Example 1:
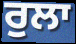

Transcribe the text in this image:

ਰੁਲਾ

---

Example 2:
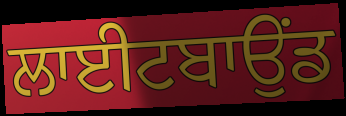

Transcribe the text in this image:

ਲਾਈਟਬਾਉਂਡ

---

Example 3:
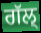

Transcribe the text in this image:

ਗੱਲ੍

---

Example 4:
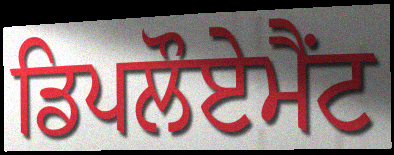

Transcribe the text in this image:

ਡਿਪਲੌਏਮੈਂਟ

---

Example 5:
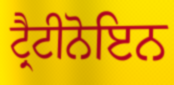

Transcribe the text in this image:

ਟ੍ਰੈਟੀਨੋਇਨ